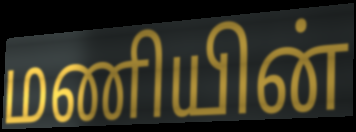
மணியின்